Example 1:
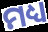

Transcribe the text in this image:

ମଧ୍ୟ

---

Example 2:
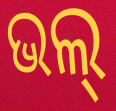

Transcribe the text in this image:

ଭଲ୍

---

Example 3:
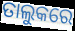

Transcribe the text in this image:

ତାଲୁକରେ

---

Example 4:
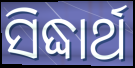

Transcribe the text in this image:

ସିଦ୍ଧାର୍ଥ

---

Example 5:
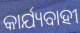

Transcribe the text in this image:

କାର୍ଯ୍ୟବାହୀ